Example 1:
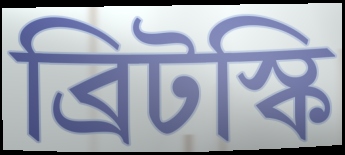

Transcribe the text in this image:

ব্রিটস্কি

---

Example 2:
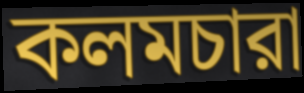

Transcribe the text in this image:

কলমচারা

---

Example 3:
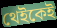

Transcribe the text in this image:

থেইকেই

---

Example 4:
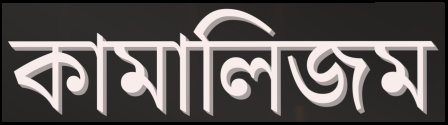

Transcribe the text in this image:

কামালিজম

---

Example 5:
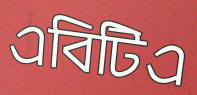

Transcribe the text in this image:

এবিটিএ